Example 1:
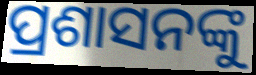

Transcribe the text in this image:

ପ୍ରଶାସନଙ୍କୁ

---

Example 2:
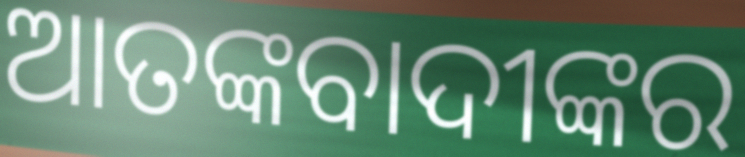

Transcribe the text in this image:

ଆତଙ୍କବାଦୀଙ୍କର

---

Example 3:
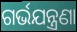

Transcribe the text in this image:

ଗର୍ଭଯନ୍ତ୍ରଣା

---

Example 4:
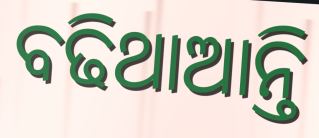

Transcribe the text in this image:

ବଢିଥାଆନ୍ତି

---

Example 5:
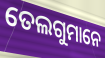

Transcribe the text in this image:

ତେଲଗୁମାନେ